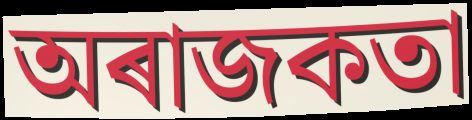
অৰাজকতা